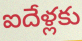
ఐదేళ్లకు